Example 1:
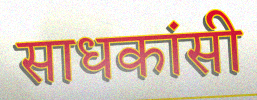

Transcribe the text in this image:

साधकांसी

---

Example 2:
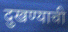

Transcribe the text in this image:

दुखण्याची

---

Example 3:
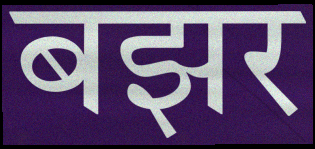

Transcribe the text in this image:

बझर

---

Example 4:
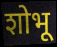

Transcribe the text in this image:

शोभू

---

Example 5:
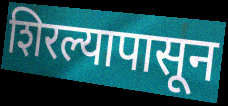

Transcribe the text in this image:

शिरल्यापासून